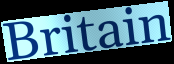
Britain